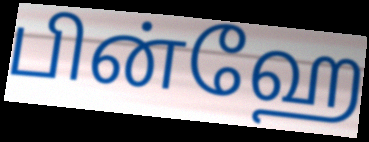
பின்ஹே